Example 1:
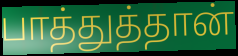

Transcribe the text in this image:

பாத்துத்தான்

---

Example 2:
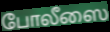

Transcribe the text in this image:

போலீஸை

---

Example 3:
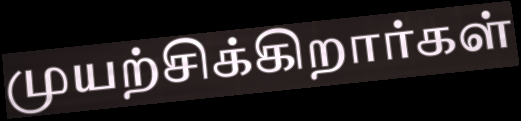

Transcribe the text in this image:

முயற்சிக்கிறார்கள்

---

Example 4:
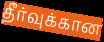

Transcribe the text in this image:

தீர்வுக்கான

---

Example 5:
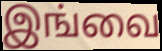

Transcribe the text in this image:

இங்வை